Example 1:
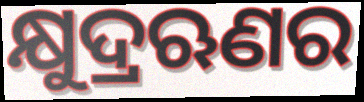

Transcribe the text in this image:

କ୍ଷୁଦ୍ରଋଣର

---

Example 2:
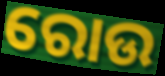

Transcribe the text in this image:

ରୋଉ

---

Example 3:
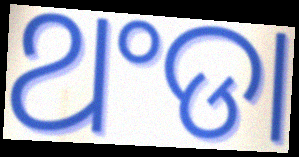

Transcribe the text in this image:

ଥଂଡା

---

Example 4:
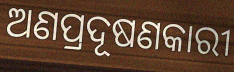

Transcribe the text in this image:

ଅଣପ୍ରଦୂଷଣକାରୀ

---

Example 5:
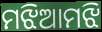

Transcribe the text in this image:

ମଝିଆମଝି